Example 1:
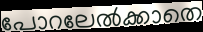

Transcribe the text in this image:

പോറലേൽക്കാതെ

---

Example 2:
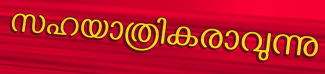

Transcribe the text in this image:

സഹയാത്രികരാവുന്നു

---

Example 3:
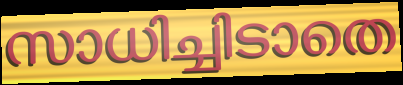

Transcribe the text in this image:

സാധിച്ചിടാതെ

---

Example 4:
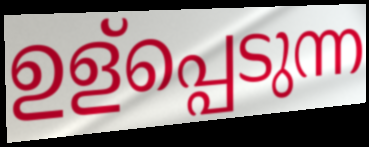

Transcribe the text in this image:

ഉള്പ്പെടുന്ന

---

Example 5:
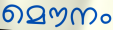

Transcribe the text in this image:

മൌനം